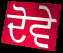
ਦੋਵੇ